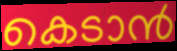
കെടാൻ